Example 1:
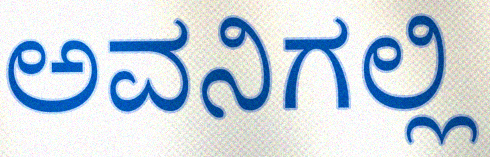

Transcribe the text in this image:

ಅವನಿಗಲ್ಲಿ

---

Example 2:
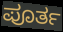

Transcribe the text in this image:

ಪೂರ್ತ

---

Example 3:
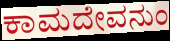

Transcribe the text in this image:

ಕಾಮದೇವನುಂ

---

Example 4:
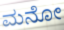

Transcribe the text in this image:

ಮನೋ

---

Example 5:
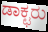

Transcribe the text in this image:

ಡಾಕ್ಟರು